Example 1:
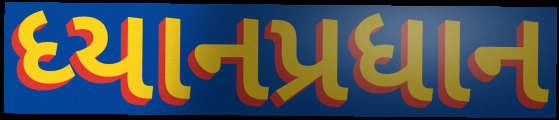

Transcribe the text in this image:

ધ્યાનપ્રધાન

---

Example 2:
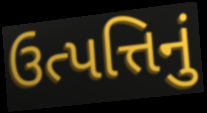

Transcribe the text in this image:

ઉત્પત્તિનું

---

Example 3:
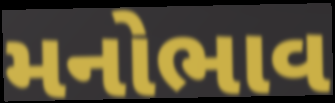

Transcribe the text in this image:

મનોભાવ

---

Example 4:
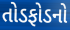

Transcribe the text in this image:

તોડફોડનો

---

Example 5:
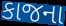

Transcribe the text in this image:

કાજના